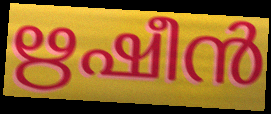
ഋഷീൻ